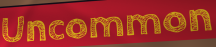
Uncommon